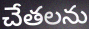
చేతలను